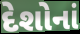
દેશોનાં